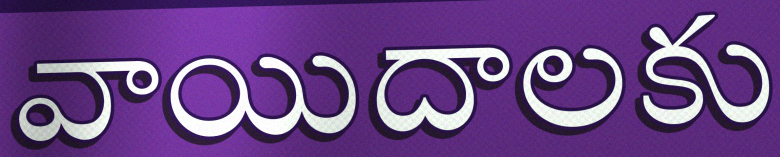
వాయిదాలకు